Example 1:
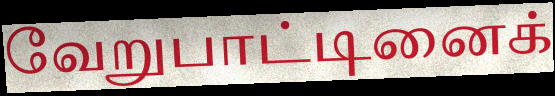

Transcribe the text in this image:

வேறுபாட்டினைக்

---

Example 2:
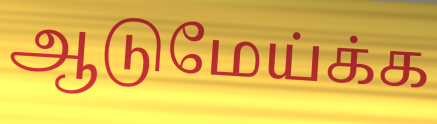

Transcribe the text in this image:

ஆடுமேய்க்க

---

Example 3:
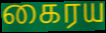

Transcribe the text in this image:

கைரய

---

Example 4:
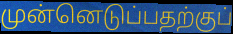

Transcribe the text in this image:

முன்னெடுப்பதற்குப்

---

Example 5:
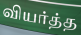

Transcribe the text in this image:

வியர்த்த